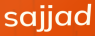
sajjad